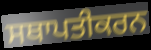
ਸਥਾਪਤੀਕਰਨ